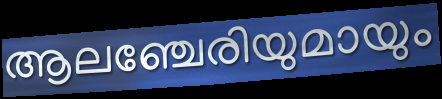
ആലഞ്ചേരിയുമായും